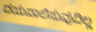
ದಯಪಾಲಿಸುವುದಿಲ್ಲ